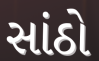
સાંઠો